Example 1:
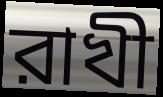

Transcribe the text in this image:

রাখী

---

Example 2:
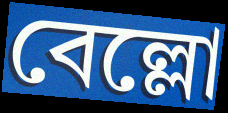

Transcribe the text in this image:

বেল্লো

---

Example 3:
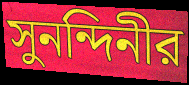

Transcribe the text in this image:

সুনন্দিনীর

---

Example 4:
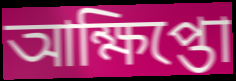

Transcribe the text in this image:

আক্ষিপ্তো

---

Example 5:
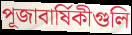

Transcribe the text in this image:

পূজাবার্ষিকীগুলি